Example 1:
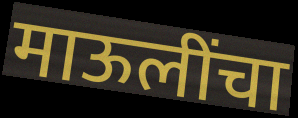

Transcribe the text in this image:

माऊलींचा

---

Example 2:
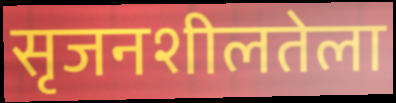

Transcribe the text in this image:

सृजनशीलतेला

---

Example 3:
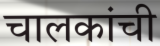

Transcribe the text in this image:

चालकांची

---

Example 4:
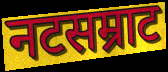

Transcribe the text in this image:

नटसम्राट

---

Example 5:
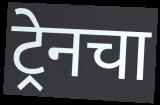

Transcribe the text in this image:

ट्रेनचा